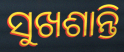
ସୁଖଶାନ୍ତି